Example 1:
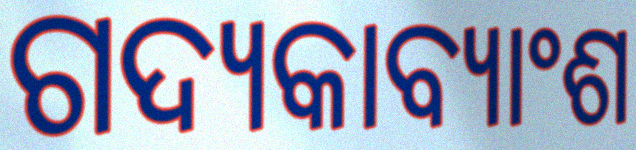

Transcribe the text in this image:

ଗଦ୍ୟକାବ୍ୟାଂଶ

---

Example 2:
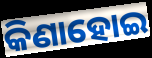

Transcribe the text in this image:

କିଣାହୋଇ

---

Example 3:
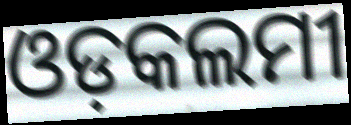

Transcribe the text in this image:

ଓଡ଼କଲମୀ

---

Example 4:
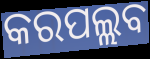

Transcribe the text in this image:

କରପଲ୍ଲବ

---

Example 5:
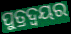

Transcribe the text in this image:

ପୁତ୍ରଦ୍ୱୟର